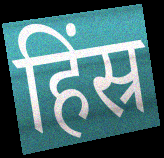
हिंस्र